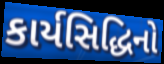
કાર્યસિદ્ધિનો